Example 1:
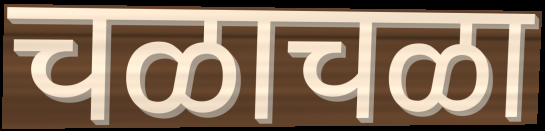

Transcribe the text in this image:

चळाचळा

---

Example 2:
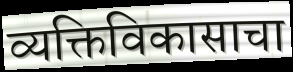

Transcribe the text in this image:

व्यक्तिविकासाचा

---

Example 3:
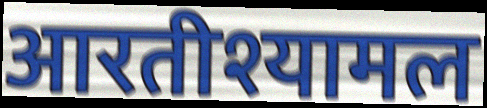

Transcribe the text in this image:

आरतीश्यामल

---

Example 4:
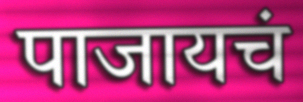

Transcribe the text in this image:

पाजायचं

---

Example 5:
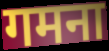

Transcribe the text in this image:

गमना